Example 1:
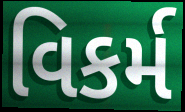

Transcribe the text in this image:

વિકર્મ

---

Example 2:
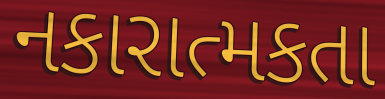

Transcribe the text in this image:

નકારાત્મકતા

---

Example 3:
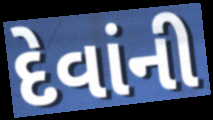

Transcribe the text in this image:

દેવાંની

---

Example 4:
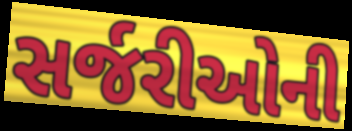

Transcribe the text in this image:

સર્જરીઓની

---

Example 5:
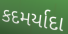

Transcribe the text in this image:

કદમર્યાદા